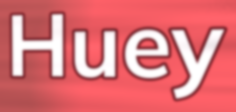
Huey